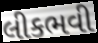
લીકભવી